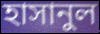
হাসানুল